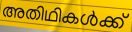
അതിഥികൾക്ക്